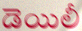
డెయిలీ